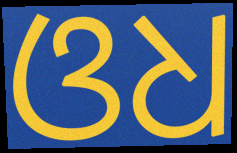
ଓଧ